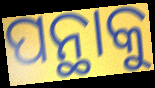
ପନ୍ଥାକୁ